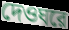
দেওঘরে